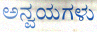
ಅನ್ವಯಗಳು